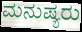
ಮನುಷ್ಯರು